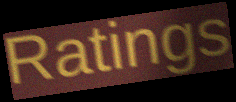
Ratings